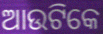
ଆଉଟିକେ